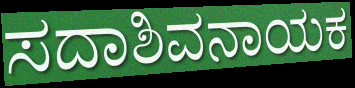
ಸದಾಶಿವನಾಯಕ